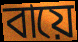
বায়ে